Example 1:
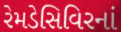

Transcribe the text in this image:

રેમડેસિવિરનાં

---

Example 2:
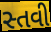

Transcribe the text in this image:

સ્તવી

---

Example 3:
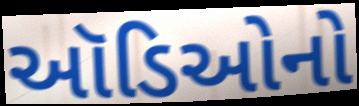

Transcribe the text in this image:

ઑડિઓનો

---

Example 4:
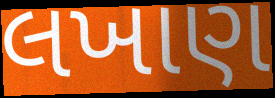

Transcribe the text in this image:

લખાણ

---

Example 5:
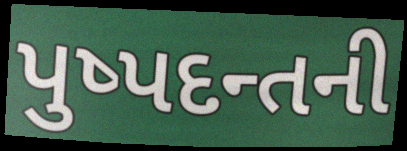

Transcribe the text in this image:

પુષ્પદન્તની